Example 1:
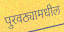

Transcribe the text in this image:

पुरवठ्यामधील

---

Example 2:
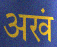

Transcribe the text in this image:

अखं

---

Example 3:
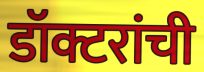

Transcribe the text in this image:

डॉक्टरांची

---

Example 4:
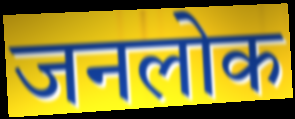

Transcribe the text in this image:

जनलोक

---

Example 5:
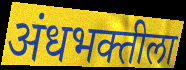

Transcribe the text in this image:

अंधभक्तीला